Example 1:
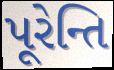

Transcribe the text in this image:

પૂરેન્તિ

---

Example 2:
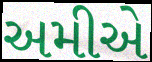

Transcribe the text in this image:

અમીએ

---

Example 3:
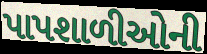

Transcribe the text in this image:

પાપશાળીઓની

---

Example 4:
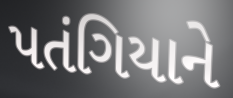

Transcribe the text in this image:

પતંગિયાને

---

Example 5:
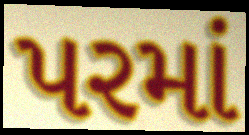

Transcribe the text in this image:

પરમાં